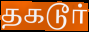
தகடூர்